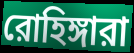
রোহিঙ্গারা